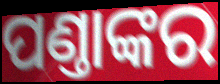
ପଣ୍ତାଙ୍କର